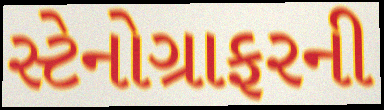
સ્ટેનોગ્રાફરની